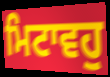
ਮਿਟਾਵਹੁ